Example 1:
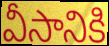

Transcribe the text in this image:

వీసానికి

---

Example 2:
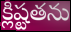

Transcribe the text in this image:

క్లిష్టతను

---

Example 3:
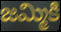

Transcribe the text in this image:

జమ్మికి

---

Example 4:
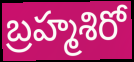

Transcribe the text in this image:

బ్రహ్మశిరో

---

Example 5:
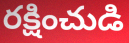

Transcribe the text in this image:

రక్షించుడి